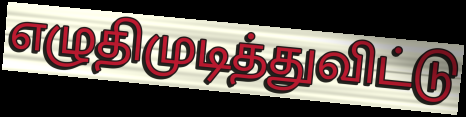
எழுதிமுடித்துவிட்டு